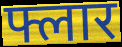
फ्लार